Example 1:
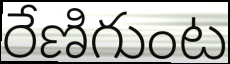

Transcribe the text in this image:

రేణిగుంట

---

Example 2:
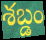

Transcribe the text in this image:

శబ్డం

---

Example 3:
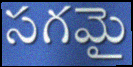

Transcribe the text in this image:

సగమై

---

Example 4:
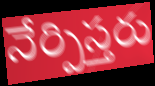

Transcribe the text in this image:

నేర్పిస్తరు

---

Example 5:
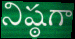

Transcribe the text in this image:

నిష్ఠగా